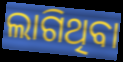
ଲାଗିଥିବା